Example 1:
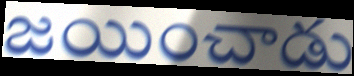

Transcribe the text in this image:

జయించాడు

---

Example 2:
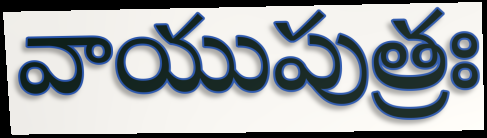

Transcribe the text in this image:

వాయుపుత్రః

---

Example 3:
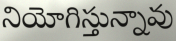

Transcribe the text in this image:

నియోగిస్తున్నావు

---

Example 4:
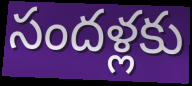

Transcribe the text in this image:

సందళ్లకు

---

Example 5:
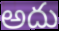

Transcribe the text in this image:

అదు